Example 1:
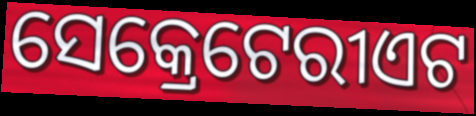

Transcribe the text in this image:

ସେକ୍ରେଟେରୀଏଟ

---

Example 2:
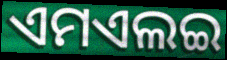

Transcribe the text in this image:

ଏମଏଲଇ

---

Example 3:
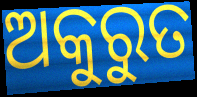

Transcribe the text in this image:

ଅକୁରୁତ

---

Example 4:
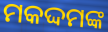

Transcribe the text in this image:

ମକଦ୍ଦମଙ୍କ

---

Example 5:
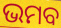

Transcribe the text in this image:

ଭମବ